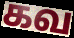
கவ